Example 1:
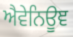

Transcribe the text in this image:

ਐਵੇਨਿਊਞ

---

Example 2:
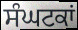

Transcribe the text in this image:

ਸੰਘਟਕਾਂ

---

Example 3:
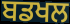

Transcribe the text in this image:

ਬਡਖਲ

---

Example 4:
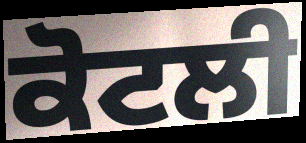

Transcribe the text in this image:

ਕੋਟਲੀ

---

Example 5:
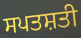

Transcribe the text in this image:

ਸਪਤਸ਼ਤੀ